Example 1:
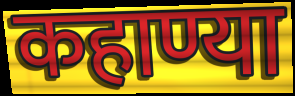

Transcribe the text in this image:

कहाण्या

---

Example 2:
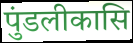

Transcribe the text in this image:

पुंडलीकासि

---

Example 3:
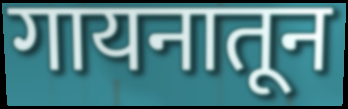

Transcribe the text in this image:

गायनातून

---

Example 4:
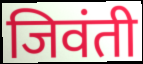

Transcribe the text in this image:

जिवंती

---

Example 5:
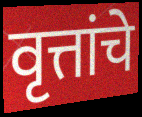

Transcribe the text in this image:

वृत्तांचे